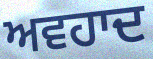
ਅਵਹਾਦ